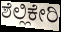
ಶೆಲ್ಲಿಕೇರಿ